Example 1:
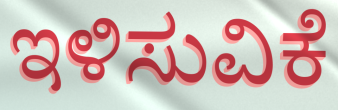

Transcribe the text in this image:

ಇಳಿಸುವಿಕೆ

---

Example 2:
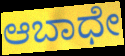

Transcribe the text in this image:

ಆಬಾಧೇ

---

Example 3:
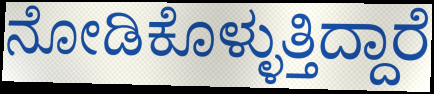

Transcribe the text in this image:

ನೋಡಿಕೊಳ್ಳುತ್ತಿದ್ದಾರೆ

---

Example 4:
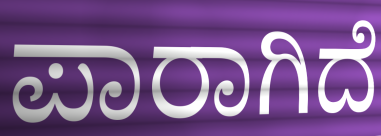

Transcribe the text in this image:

ಪಾರಾಗಿದೆ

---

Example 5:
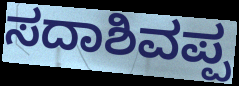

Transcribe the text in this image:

ಸದಾಶಿವಪ್ಪ